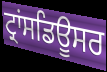
ਟ੍ਰਾਂਸਡਿਊਸਰ